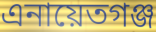
এনায়েতগঞ্জ